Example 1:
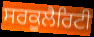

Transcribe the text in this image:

ਸਰਕੂਲੈਰਿਟੀ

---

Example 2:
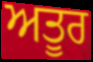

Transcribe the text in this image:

ਅਤੂਰ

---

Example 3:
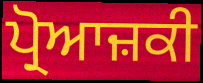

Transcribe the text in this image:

ਪ੍ਰੋਆਜ਼ਕੀ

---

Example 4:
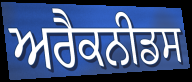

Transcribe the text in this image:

ਅਰੈਕਨੀਡਸ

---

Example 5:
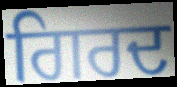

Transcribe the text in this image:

ਗਿਰਦ